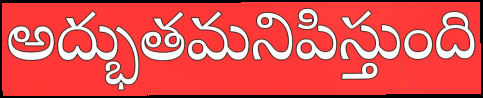
అద్భుతమనిపిస్తుంది